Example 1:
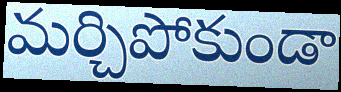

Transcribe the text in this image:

మర్చిపోకుండా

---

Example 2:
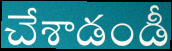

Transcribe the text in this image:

చేశాడండీ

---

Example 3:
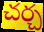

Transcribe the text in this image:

చర్చ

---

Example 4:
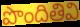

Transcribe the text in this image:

పొందితివి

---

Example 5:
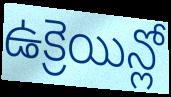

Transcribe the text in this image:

ఉక్రెయిన్లో